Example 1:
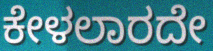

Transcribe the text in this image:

ಕೇಳಲಾರದೇ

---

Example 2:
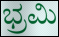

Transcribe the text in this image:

ಭ್ರಮಿ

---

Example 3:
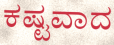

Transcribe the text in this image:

ಕಷ್ಟವಾದ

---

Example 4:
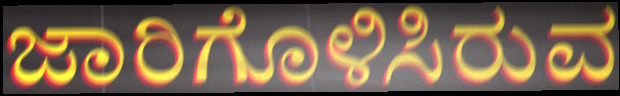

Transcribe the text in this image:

ಜಾರಿಗೊಳಿಸಿರುವ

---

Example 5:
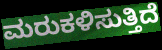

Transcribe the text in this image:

ಮರುಕಳಿಸುತ್ತಿದೆ